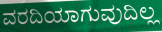
ವರದಿಯಾಗುವುದಿಲ್ಲ